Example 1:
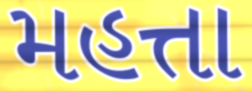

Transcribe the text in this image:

મહત્તા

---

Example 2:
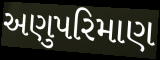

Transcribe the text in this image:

અણુપરિમાણ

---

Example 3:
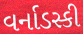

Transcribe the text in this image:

વર્નાડસ્કી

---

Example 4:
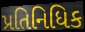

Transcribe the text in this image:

પ્રતિનિધિક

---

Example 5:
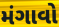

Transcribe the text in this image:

મંગાવો